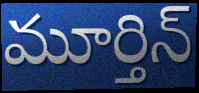
మూర్తిన్